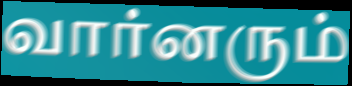
வார்னரும்